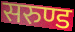
सरुण्ड